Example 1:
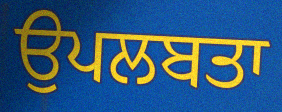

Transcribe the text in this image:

ਉਪਲਬਤਾ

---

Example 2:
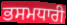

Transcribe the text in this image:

ਭਸਮਧਾਰੀ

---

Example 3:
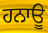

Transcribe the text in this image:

ਹਨਾਊ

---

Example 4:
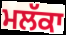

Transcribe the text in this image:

ਮਲੱਕਾ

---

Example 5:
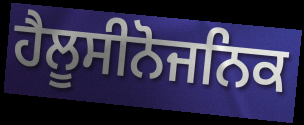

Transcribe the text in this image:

ਹੈਲੂਸੀਨੋਜਨਿਕ